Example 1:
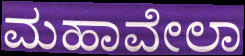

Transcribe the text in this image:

ಮಹಾವೇಲಾ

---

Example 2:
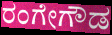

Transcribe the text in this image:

ರಂಗೇಗೌಡ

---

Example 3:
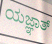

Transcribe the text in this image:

ಯಜ್ಞಾತ್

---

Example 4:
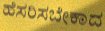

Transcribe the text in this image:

ಹೆಸರಿಸಬೇಕಾದ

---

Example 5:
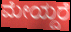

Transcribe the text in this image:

ಮೇಯ್ದರೆ